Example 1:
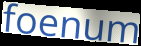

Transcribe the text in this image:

foenum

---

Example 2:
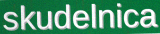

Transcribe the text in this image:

skudelnica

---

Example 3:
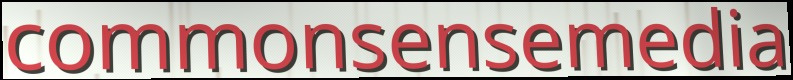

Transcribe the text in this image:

commonsensemedia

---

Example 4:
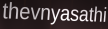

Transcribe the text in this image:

thevnyasathi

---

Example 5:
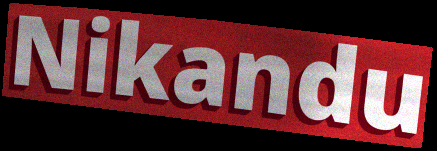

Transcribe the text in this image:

Nikandu